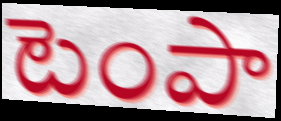
టెంపా